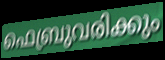
ഫെബ്രുവരിക്കും